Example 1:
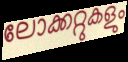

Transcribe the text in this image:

ലോക്കറ്റുകളും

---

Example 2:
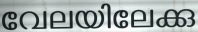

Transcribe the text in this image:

വേലയിലേക്കു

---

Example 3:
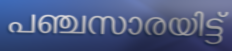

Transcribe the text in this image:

പഞ്ചസാരയിട്ട്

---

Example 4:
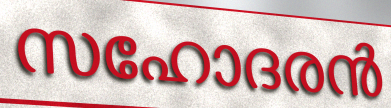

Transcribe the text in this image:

സഹോദരൻ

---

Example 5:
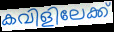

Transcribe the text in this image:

കവിളിലേക്ക്